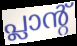
പ്ലാന്റ്